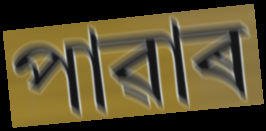
পাৱাৰ